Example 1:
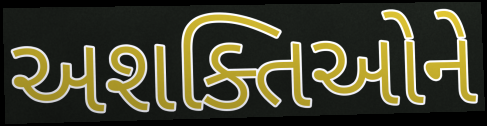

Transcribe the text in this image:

અશક્તિઓને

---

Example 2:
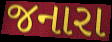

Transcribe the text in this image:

જનારા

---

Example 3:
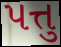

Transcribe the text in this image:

પત્તુ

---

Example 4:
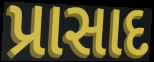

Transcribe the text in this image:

પ્રાસાદ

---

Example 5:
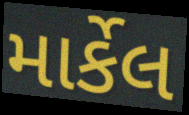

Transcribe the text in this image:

માર્કેલ